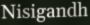
Nisigandh